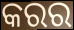
କରର